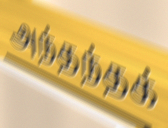
அந்தந்தக்